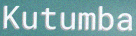
Kutumba